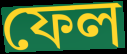
ফেল